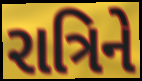
રાત્રિને